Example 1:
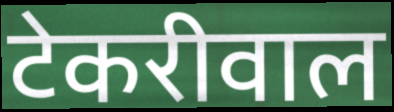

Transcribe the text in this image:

टेकरीवाल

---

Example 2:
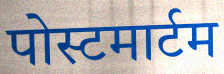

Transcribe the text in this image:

पोस्टमार्टम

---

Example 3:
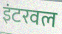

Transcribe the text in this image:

इंटरवल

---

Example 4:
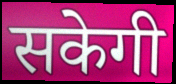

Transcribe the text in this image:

सकेगी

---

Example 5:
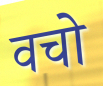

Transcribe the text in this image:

वचो